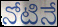
నోటినే